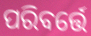
ପରିବର୍ତ୍ତେ